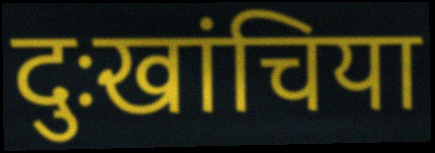
दुःखांचिया